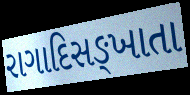
રાગાદિસઙ્ખાતા